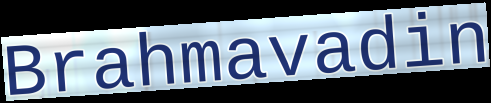
Brahmavadin